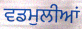
ਵਡਮੁਲੀਆਂ